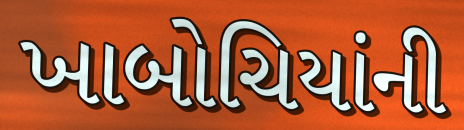
ખાબોચિયાંની